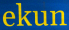
ekun